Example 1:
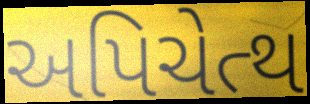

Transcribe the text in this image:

અપિચેત્થ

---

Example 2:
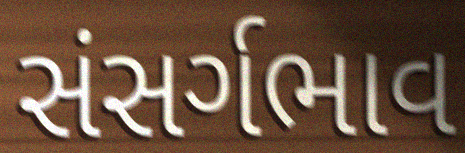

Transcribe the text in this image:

સંસર્ગભાવ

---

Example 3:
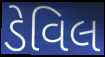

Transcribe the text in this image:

ડેવિલ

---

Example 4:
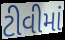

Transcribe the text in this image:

ટીવીમાં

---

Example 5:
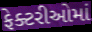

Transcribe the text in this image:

ફેક્ટરીઓમાં